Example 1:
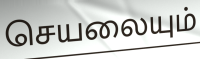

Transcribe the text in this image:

செயலையும்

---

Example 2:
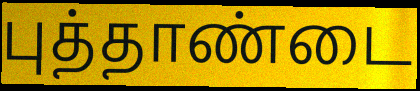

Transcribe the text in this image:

புத்தாண்டை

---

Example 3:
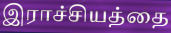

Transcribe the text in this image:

இராச்சியத்தை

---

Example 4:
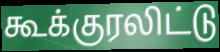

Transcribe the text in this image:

கூக்குரலிட்டு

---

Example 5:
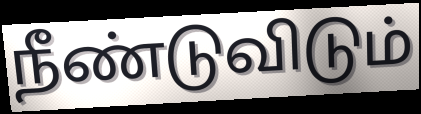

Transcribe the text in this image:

நீண்டுவிடும்